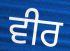
ਵੀਰ